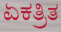
ಏಕತ್ರಿತ